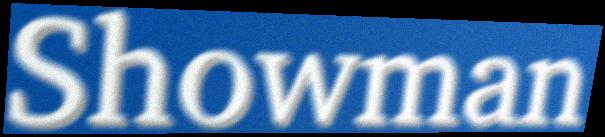
Showman